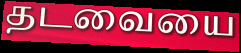
தடவையை